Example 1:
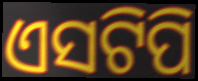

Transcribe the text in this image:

ଏସଟିପି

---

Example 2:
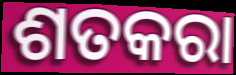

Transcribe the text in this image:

ଶତକରା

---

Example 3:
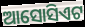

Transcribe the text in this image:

ଆସୋସିଏଟ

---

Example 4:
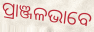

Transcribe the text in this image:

ପ୍ରାଞ୍ଜଳଭାବେ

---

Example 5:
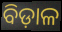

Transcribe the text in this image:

ବିଡ଼ାଳ